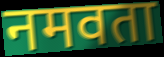
नमवता